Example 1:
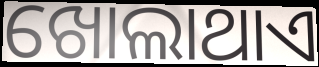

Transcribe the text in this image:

ଖୋଲାଥାଏ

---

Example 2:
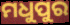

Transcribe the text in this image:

ମଧୁପୁର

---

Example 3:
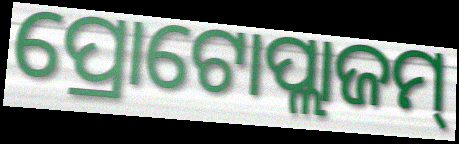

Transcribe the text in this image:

ପ୍ରୋଟୋପ୍ଲାଜମ୍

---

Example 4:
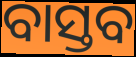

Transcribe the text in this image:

ବାସ୍ତବ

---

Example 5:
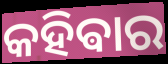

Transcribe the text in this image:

କହିଵାର